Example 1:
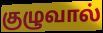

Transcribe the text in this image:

குழுவால்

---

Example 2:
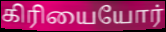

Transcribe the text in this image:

கிரியையோர்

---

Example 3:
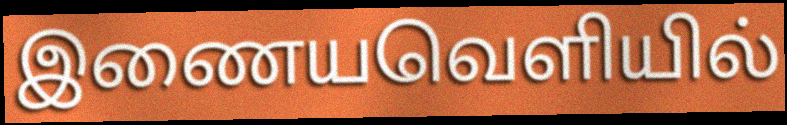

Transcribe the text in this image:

இணையவெளியில்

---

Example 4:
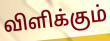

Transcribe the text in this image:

விளிக்கும்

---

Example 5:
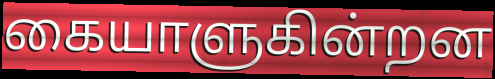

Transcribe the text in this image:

கையாளுகின்றன